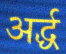
अर्द्ध